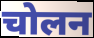
चोलन